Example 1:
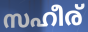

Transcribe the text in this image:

സഹീര്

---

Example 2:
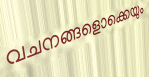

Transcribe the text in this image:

വചനങ്ങളൊക്കെയും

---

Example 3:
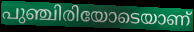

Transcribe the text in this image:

പുഞ്ചിരിയോടെയാണ്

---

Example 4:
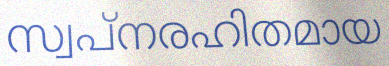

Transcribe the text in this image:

സ്വപ്നരഹിതമായ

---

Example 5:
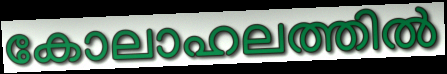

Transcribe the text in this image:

കോലാഹലത്തിൽ